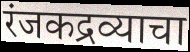
रंजकद्रव्याचा